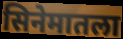
सिनेमातला